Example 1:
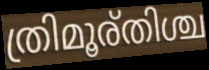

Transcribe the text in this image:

ത്രിമൂര്തിശ്ച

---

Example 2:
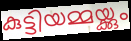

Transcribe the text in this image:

കുട്ടിയമ്മയ്ക്കും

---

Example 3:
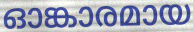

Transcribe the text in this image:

ഓങ്കാരമായ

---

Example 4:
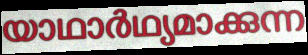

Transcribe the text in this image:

യാഥാർഥ്യമാക്കുന്ന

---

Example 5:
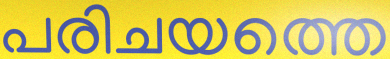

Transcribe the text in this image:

പരിചയത്തെ